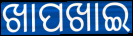
ଖାପଖାଇ